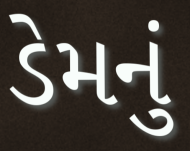
ડેમનું